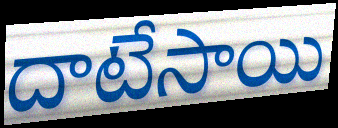
దాటేసాయి